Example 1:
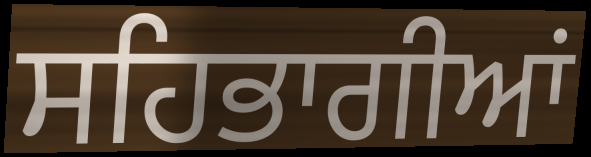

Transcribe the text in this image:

ਸਹਿਭਾਗੀਆਂ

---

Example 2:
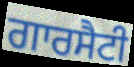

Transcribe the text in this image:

ਗਾਰਸੈਟੀ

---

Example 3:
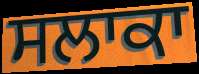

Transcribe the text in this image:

ਸਲਾਕਾ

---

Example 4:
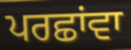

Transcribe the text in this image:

ਪਰਛਾਂਵਾ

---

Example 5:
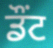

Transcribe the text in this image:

ਡੌਂਟ